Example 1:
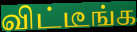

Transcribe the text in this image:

விட்டீங்க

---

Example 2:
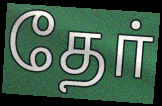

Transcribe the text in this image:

தேர்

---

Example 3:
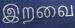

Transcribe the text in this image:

இறவை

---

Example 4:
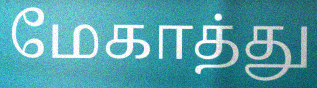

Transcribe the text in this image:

மேகாத்து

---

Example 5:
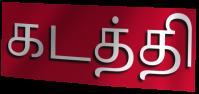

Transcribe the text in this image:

கடத்தி